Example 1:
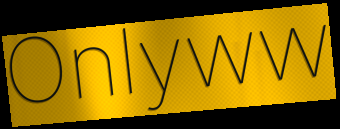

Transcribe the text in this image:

Onlyww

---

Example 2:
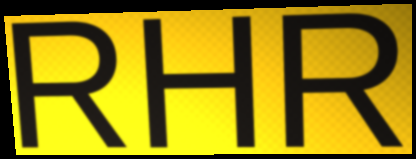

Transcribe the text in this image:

RHR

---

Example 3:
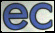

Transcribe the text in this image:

ec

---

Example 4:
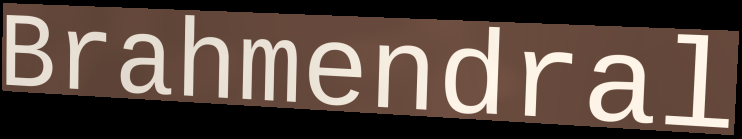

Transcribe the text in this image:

Brahmendral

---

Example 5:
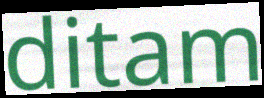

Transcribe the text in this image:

ditam